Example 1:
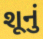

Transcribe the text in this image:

શૂનું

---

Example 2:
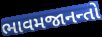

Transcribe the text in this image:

ભાવમજાનન્તો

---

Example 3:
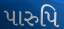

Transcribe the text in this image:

પારુપિ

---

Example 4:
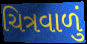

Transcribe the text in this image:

ચિત્રવાળું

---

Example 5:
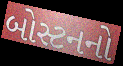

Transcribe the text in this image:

બોસ્ટનનો